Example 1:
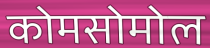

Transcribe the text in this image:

कोमसोमोल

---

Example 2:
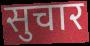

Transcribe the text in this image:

सुचार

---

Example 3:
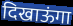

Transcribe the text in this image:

दिखाऊंगा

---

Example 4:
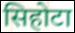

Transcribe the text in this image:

सिहोटा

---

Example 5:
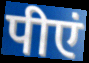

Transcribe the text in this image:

पीएं